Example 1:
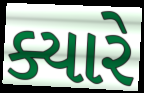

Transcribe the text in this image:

ક્‍યારે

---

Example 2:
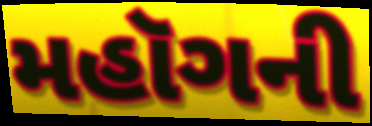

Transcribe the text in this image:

મહૉગની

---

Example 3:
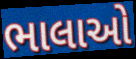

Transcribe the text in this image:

ભાલાઓ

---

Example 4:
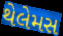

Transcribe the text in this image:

થેલેમસ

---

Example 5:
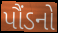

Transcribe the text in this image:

પૌંડનો